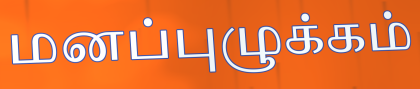
மனப்புழுக்கம்